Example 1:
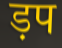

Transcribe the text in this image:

ड़प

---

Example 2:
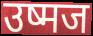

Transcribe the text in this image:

उष्मज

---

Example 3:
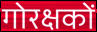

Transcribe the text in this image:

गोरक्षकों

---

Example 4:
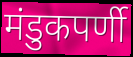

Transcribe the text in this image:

मंडुकपर्णी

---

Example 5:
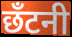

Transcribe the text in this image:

छँटनी